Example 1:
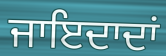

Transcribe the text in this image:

ਜਾਇਦਾਦਾਂ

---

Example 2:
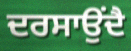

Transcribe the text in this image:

ਦਰਸਾਉਂਦੈ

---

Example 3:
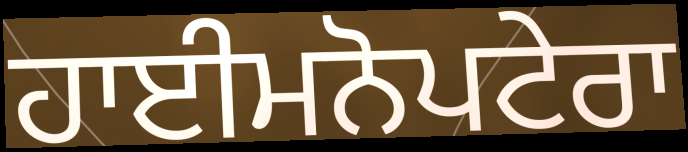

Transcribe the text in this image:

ਹਾਈਮਨੋਪਟੇਰਾ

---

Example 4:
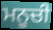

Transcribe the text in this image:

ਮਨੂਚੀ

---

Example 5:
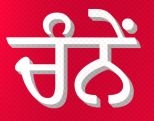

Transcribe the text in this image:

ਚੰਨੇਂ